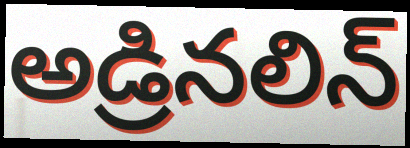
అడ్రినలిన్